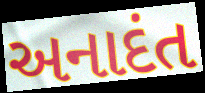
અનાદંત